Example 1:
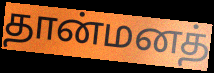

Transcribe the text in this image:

தான்மனத்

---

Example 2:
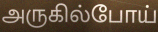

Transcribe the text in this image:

அருகில்போய்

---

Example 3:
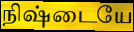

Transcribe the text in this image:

நிஷ்டையே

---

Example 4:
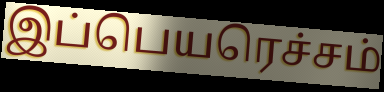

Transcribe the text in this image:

இப்பெயரெச்சம்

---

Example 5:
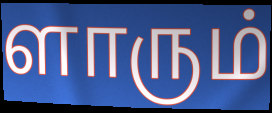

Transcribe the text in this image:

ளாரும்